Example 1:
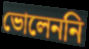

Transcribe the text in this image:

ভোলেননি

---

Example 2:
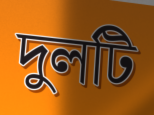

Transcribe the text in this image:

দুলটি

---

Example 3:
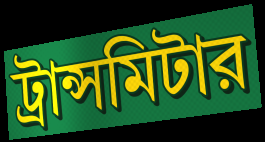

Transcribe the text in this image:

ট্রান্সমিটার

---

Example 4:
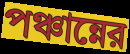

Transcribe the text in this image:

পঞ্চান্নের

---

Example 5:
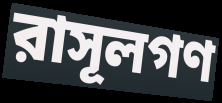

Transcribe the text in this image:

রাসূলগণ